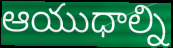
ఆయుధాల్ని